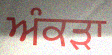
ਅੰਕੜਾ